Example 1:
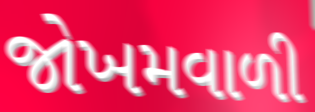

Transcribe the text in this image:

જોખમવાળી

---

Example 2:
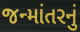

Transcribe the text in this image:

જન્માંતરનું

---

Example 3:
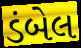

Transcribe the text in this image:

ડંબેલ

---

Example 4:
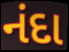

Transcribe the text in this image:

નંદા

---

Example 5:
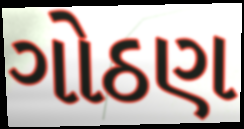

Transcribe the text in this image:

ગોઠણ